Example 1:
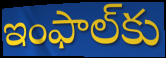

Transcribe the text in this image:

ఇంఫాల్‌కు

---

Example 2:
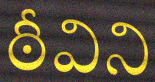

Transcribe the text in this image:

ఠీవిని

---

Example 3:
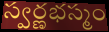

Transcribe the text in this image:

స్వర్ణభస్మం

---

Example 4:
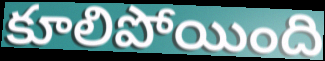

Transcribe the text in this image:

కూలిపోయింది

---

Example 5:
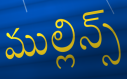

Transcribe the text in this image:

ముల్లిన్స్